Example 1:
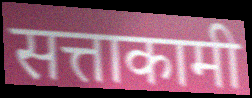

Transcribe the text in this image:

सत्ताकामी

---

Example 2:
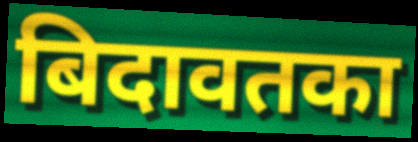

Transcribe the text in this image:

बिदावतका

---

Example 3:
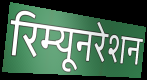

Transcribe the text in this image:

रिम्यूनरेशन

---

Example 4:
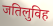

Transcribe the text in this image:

जतिलुविह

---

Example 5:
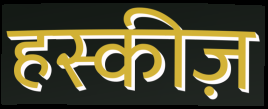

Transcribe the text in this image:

हस्कीज़